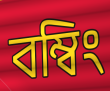
বম্বিং